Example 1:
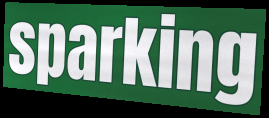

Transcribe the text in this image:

sparking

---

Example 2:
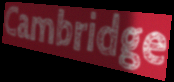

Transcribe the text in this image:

Cambridge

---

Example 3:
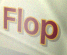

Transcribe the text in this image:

Flop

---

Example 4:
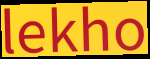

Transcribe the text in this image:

lekho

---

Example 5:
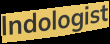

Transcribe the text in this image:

Indologist